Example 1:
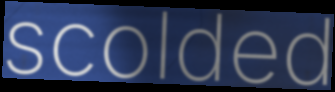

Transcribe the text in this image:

scolded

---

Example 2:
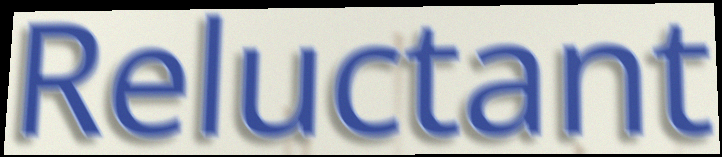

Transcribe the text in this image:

Reluctant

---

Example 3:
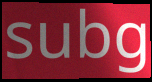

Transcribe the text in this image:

subg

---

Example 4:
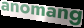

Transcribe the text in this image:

anomang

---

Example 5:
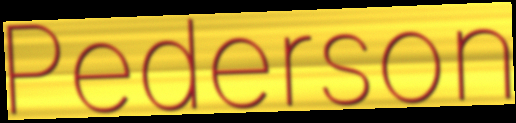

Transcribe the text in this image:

Pederson